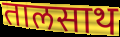
तालसाथ